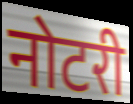
नोटरी